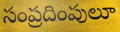
సంప్రదింపులూ